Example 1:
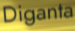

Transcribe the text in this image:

Diganta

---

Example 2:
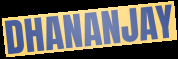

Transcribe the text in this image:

DHANANJAY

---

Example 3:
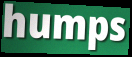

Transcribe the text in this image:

humps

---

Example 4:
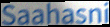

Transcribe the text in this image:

Saahasni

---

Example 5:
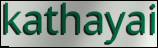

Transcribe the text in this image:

kathayai